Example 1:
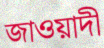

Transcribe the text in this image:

জাওয়াদী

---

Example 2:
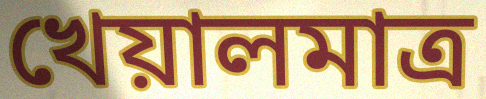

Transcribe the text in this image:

খেয়ালমাত্র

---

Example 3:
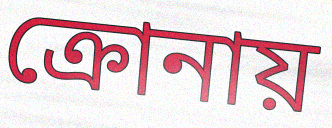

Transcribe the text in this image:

ক্রোনায়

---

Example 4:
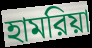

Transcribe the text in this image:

হামরিয়া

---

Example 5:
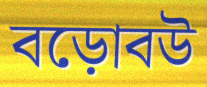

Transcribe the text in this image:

বড়োবউ